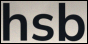
hsb